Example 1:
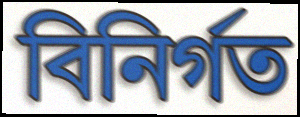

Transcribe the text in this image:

বিনির্গত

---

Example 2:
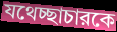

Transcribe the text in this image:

যথেচ্ছাচারকে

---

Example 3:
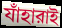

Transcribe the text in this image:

যাঁহারাই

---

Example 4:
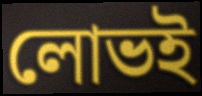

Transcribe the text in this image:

লোভই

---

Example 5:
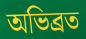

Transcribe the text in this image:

অভিব্রত